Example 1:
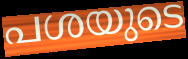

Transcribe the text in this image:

പശയുടെ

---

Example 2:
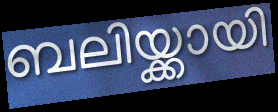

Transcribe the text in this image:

ബലിയ്ക്കായി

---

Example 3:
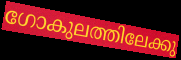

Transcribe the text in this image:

ഗോകുലത്തിലേക്കു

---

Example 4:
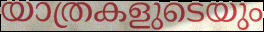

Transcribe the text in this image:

യാത്രകളുടെയും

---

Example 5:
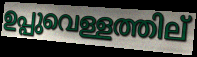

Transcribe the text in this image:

ഉപ്പുവെള്ളത്തില്